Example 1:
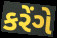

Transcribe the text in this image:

કરેંગે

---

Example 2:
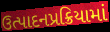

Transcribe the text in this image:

ઉત્પાદનપ્રક્રિયામાં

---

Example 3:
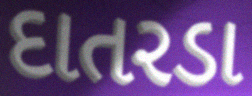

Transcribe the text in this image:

દાતરડા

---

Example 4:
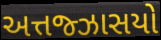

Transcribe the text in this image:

અત્તજ્ઝાસયો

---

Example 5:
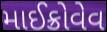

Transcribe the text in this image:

માઈક્રોવેવ